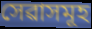
সেৱাসমূহ